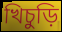
খিচুড়ি